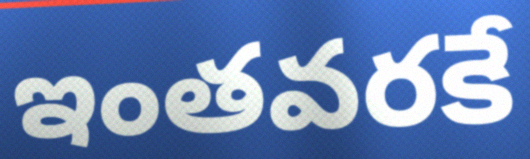
ఇంతవరకే